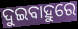
ଦୁଇବାହୁରେ